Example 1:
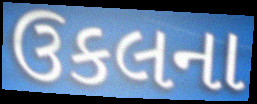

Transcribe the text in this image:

ઉકલના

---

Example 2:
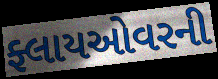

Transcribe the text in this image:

ફ્લાયઓવરની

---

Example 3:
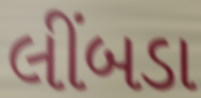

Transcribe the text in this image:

લીંબડા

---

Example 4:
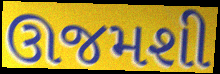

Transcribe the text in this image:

ઊજમશી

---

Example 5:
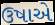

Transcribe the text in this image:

ઉષાએ